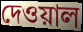
দেওয়াল